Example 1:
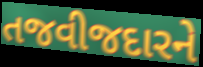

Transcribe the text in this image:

તજવીજદારને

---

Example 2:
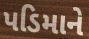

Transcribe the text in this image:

પડિમાને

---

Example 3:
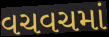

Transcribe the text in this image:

વચવચમાં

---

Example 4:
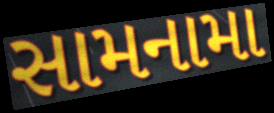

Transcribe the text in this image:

સામનામા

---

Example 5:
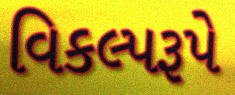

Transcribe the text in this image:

વિકલ્પરૂપે